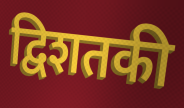
द्विशतकी